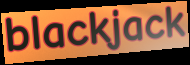
blackjack